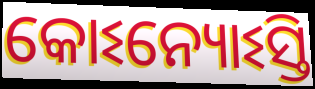
କୋଽନ୍ୟୋଽସ୍ତି